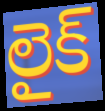
లైక్